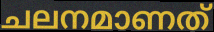
ചലനമാണത്